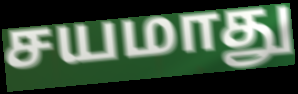
சயமாது